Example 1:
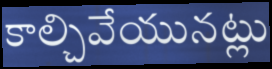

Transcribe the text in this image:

కాల్చివేయునట్లు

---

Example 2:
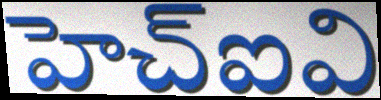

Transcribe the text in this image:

హెచ్ఐవి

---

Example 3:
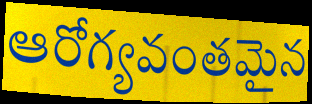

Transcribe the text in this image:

ఆరోగ్యవంతమైన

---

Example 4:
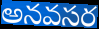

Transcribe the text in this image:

అనవసర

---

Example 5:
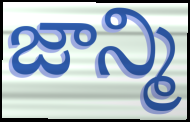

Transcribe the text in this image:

జాన్మి